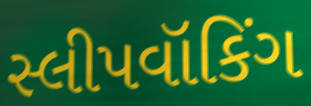
સ્લીપવૉકિંગ